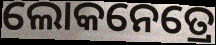
ଲୋକନେତ୍ରେ